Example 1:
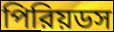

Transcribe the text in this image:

পিরিয়ডস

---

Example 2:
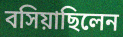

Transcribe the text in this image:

বসিয়াছিলেন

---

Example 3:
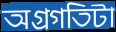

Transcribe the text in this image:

অগ্রগতিটা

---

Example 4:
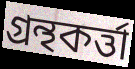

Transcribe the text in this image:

গ্রন্থকর্ত্তা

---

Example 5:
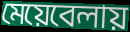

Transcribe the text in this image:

মেয়েবেলায়